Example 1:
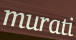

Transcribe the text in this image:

murati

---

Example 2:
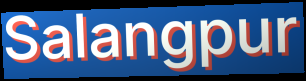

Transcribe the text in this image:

Salangpur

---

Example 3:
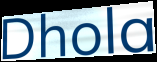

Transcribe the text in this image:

Dhola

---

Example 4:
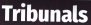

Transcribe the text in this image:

Tribunals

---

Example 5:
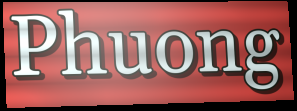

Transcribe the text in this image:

Phuong